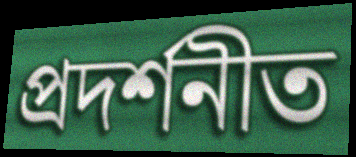
প্ৰদৰ্শনীত